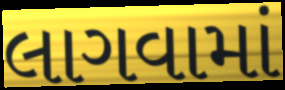
લાગવામાં